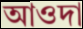
আওদা